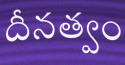
దీనత్వం